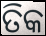
ତିକ